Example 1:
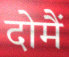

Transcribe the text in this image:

दोमैं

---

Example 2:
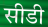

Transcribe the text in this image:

सीडी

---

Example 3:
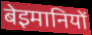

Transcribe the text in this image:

बेइमानियों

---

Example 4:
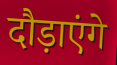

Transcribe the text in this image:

दौड़ाएंगे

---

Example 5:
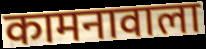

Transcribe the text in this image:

कामनावाला